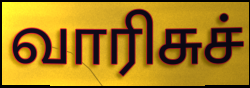
வாரிசுச்